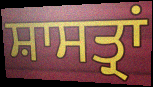
ਸ਼ਾਸਤ੍ਰਾਂ